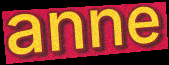
anne